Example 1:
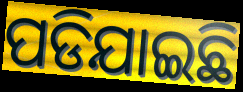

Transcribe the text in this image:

ପଡିଯାଇଛି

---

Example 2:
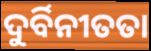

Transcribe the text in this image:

ଦୁର୍ବିନୀତତା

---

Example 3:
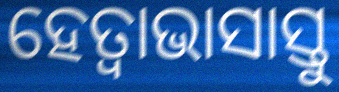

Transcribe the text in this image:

ହେତ୍ଵାଭାସାସ୍ତୁ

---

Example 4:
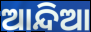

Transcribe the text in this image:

ଆନ୍ଦିଆ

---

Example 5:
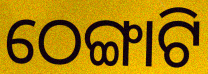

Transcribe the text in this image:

ଠେଙ୍ଗାଟି